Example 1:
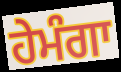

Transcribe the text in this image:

ਹੇਮੰਗਾ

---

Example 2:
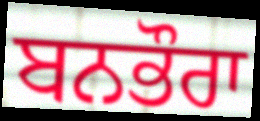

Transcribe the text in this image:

ਬਨਭੌਰਾ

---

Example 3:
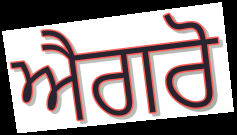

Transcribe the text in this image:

ਐਗਰੋ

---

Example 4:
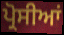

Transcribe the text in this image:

ਪ੍ਰੋਸੀਆਂ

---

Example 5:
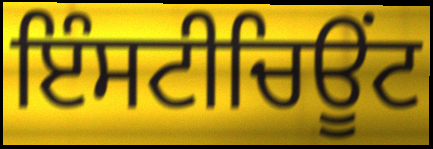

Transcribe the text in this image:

ਇੰਸਟੀਚਿਊਂਟ